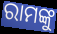
ରାମଙ୍କୁ